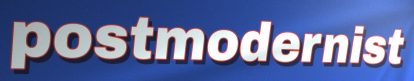
postmodernist